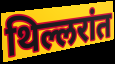
थिल्लरांत